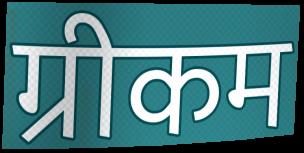
ग्रीकम